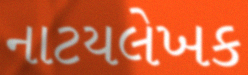
નાટયલેખક